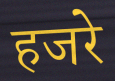
हजरे